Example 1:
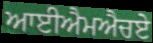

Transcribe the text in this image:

ਆਈਐਮਐਚਏ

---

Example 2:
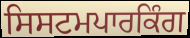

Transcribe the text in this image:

ਸਿਸਟਮਪਾਰਕਿੰਗ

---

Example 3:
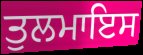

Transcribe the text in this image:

ਤੁਲਮਾਇਸ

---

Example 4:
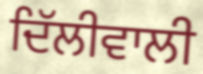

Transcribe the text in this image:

ਦਿੱਲੀਵਾਲੀ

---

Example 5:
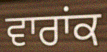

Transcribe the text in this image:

ਵਾਰਾਂਕ